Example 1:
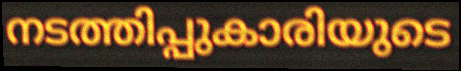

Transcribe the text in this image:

നടത്തിപ്പുകാരിയുടെ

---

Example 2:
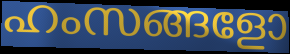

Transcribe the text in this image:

ഹംസങ്ങളോ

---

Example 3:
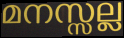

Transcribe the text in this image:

മനസ്സല്ല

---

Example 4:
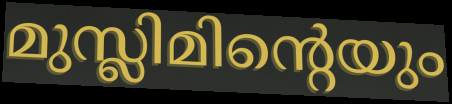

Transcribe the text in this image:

മുസ്ലിമിന്റെയും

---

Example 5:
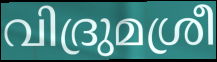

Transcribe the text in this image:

വിദ്രുമശ്രീ